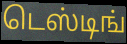
டெஸ்டிங்